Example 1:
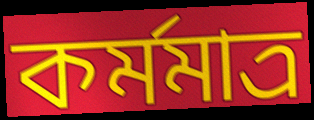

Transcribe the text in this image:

কর্মমাত্র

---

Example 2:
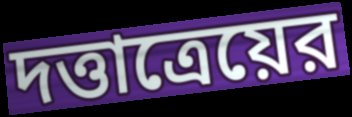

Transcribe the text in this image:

দত্তাত্রেয়ের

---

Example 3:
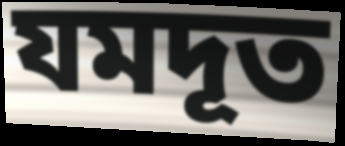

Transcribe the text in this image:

যমদূত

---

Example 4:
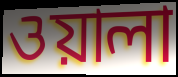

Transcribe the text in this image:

ওয়ালা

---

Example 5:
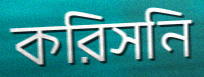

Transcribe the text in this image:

করিসনি